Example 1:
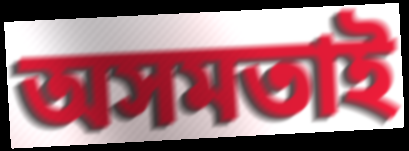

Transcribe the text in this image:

অসমতাই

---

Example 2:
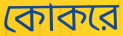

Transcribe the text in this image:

কোকরে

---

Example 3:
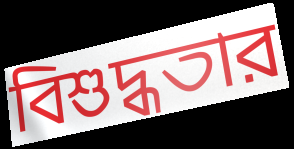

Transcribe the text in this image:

বিশুদ্ধতার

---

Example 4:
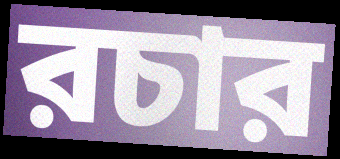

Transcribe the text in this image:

রচার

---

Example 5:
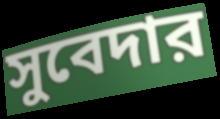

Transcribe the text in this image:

সুবেদার